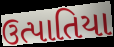
ઉત્પાતિયા